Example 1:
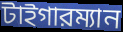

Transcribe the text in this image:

টাইগারম্যান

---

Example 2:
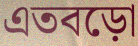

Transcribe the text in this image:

এতবড়ো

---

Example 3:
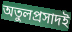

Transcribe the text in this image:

অতুলপ্রসাদই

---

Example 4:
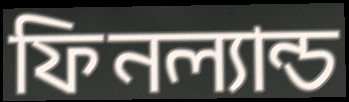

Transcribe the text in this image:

ফিনল্যান্ড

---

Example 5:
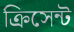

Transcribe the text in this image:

ক্রিসেন্ট